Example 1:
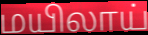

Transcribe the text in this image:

மயிலாய்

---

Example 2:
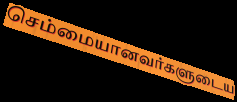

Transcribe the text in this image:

செம்மையானவர்களுடைய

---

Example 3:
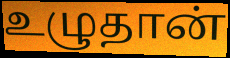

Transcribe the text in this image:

உழுதான்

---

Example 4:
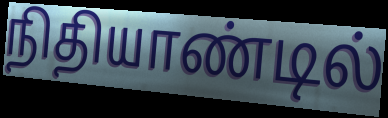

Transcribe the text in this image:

நிதியாண்டில்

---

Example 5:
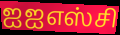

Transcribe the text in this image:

ஐஐஎஸ்சி